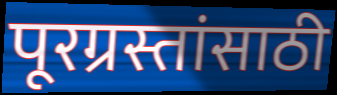
पूरग्रस्तांसाठी